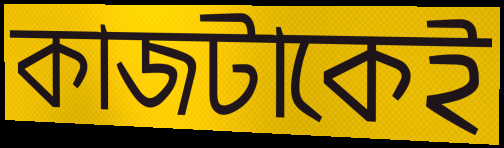
কাজটাকেই